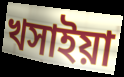
খসাইয়া